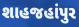
શાહજહાંપુર